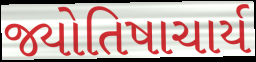
જ્યોતિષાચાર્ય